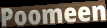
Poomeen